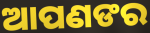
ଆପଣଙର